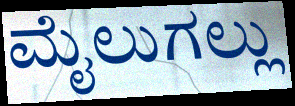
ಮೈಲುಗಲ್ಲು